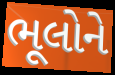
ભૂલોને